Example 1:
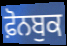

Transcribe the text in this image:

ਫ਼ੋਨਬੁਕ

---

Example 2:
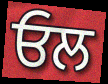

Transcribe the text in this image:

ਓਲ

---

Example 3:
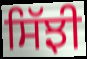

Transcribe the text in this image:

ਸਿੱਝੀ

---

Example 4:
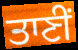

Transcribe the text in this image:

ਤਾਣੀਂ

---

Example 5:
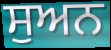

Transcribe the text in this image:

ਸੁਅਨ